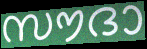
സൗദാ